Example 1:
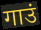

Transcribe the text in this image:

गाउं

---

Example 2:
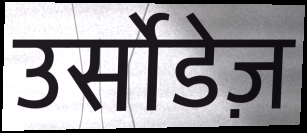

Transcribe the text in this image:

उर्सोडेज़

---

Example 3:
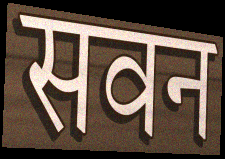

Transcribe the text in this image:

सवन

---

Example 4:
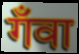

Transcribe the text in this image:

गँवा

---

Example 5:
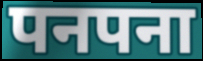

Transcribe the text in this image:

पनपना